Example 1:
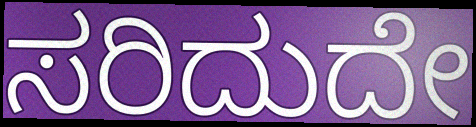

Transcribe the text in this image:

ಸರಿದುದೇ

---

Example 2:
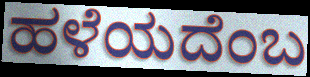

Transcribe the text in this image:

ಹಳೆಯದೆಂಬ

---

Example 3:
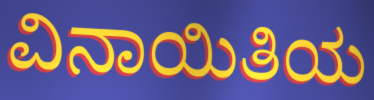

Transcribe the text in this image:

ವಿನಾಯಿತಿಯ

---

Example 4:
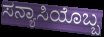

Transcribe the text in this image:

ಸನ್ಯಾಸಿಯೊಬ್ಬ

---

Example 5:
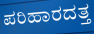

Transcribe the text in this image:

ಪರಿಹಾರದತ್ತ